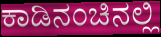
ಕಾಡಿನಂಚಿನಲ್ಲಿ